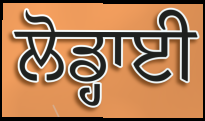
ਲੋਡ੍ਹਾਈ